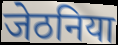
जेठनिया